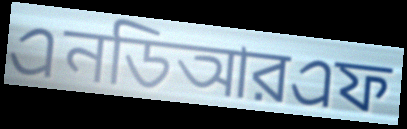
এনডিআরএফ